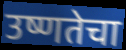
उष्णतेचा